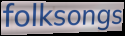
folksongs